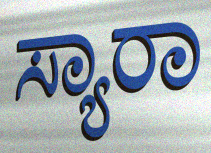
ಸ್ಯಾರಾ